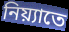
নিয়্যাতে